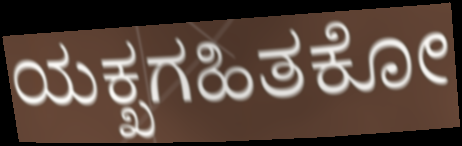
ಯಕ್ಖಗಹಿತಕೋ